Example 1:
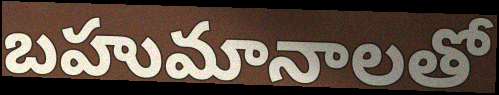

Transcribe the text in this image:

బహుమానాలతో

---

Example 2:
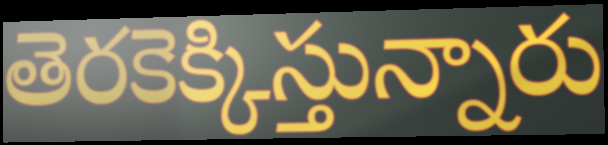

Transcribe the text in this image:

తెరకెక్కిస్తున్నారు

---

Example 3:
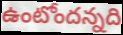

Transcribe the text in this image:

ఉంటోందన్నది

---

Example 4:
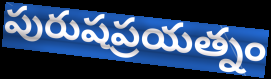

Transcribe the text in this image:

పురుషప్రయత్నం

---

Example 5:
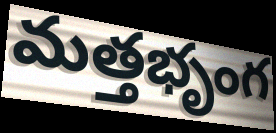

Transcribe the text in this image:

మత్తభృంగ